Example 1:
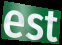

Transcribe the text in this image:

est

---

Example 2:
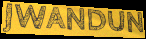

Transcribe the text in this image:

JWANDUN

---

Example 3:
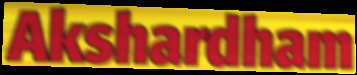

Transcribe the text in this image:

Akshardham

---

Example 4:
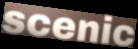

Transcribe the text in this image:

scenic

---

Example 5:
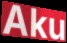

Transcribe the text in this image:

Aku